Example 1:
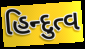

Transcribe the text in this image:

હિન્દુત્વ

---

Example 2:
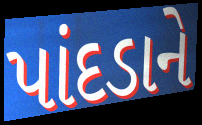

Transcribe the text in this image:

પાંદડાને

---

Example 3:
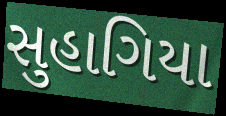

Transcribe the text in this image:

સુહાગિયા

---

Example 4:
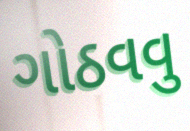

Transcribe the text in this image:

ગોઠવવુ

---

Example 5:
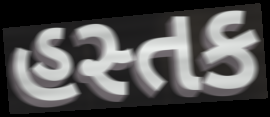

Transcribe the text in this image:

હસ્તક